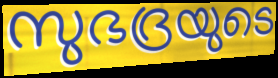
സുഭദ്രയുടെ